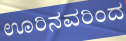
ಊರಿನವರಿಂದ